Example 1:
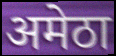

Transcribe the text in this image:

अमेठा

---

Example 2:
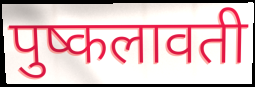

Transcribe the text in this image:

पुष्कलावती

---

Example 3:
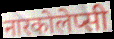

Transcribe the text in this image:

नारकोलेप्सी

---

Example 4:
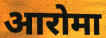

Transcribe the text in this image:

आरोमा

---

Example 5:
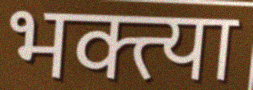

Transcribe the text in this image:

भक्त्या